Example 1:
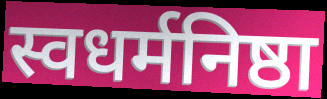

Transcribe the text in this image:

स्वधर्मनिष्ठा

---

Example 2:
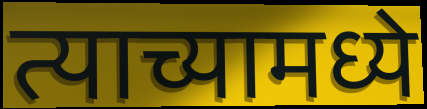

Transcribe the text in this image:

त्याच्यामध्ये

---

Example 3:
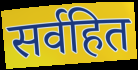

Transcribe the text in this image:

सर्वहित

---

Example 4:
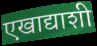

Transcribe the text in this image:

एखाद्याशी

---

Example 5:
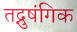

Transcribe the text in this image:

तद्नुषंगिक